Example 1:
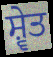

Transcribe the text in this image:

ਸ਼੍ਵੇਤ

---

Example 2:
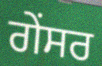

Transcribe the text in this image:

ਗੇਂਸਰ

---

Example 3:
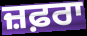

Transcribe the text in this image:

ਜ਼ਫ਼ਰਾ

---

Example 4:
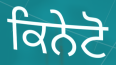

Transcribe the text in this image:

ਕਿਨੇਟੋ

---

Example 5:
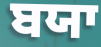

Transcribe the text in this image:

ਬਯਾ